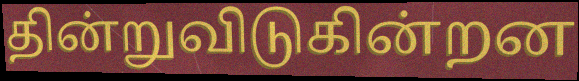
தின்றுவிடுகின்றன